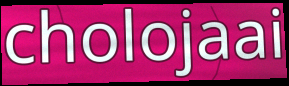
cholojaai